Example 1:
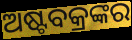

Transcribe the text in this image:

ଅଷ୍ଟବକ୍ରଙ୍କର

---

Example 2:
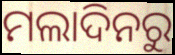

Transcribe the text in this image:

ମଲାଦିନରୁ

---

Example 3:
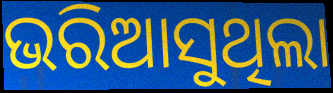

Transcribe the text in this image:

ଭରିଆସୁଥିଲା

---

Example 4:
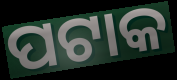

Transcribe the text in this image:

ପଟାକ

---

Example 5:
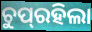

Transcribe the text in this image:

ଚୁପ୍‌ରହିଲା